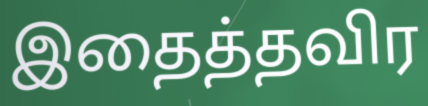
இதைத்தவிர